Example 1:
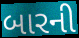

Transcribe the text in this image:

બારની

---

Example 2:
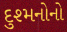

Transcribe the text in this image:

દુશ્મનોનો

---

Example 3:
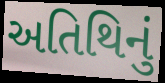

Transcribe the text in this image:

અતિથિનું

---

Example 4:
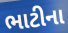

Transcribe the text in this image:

ભાટીના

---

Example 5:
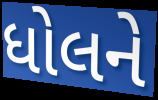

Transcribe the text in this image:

ધોલને